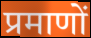
प्रमाणों